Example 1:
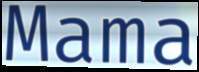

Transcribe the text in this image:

Mama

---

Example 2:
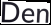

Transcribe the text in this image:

Den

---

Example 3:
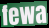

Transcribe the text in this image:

fewa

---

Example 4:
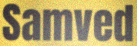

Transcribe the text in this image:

Samved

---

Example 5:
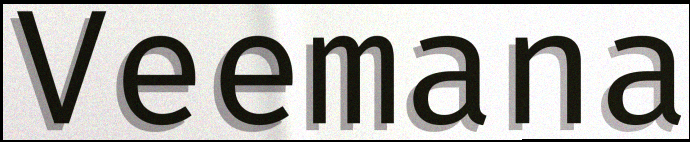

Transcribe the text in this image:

Veemana